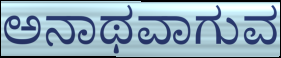
ಅನಾಥವಾಗುವ